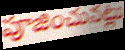
పూజించునట్లు